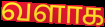
வளாக